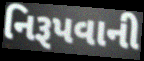
નિરૂપવાની